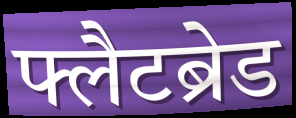
फ्लैटब्रेड